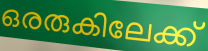
ഒരരുകിലേക്ക്